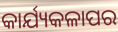
କାର୍ଯ୍ୟକଳାପର